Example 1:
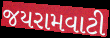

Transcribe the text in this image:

જયરામવાટી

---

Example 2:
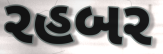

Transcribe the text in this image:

રહબર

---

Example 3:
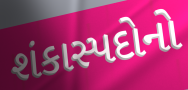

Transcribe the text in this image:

શંકાસ્પદોનો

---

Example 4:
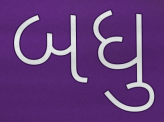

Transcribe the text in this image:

બધુ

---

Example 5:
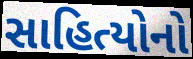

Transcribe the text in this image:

સાહિત્યોનો